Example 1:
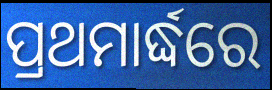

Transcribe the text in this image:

ପ୍ରଥମାର୍ଦ୍ଧରେ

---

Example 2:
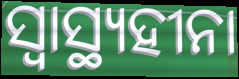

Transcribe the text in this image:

ସ୍ଵାସ୍ଥ୍ୟହୀନା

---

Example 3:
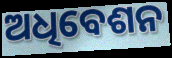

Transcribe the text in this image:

ଅଧିବେଶନ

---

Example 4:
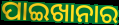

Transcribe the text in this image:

ପାଇଖାନାର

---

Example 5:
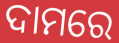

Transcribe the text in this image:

ଦାମରେ